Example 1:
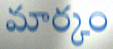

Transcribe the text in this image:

మార్కం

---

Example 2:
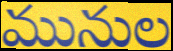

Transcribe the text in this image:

మునుల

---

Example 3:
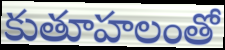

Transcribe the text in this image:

కుతూహలంతో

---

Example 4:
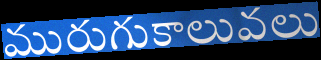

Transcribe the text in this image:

మురుగుకాలువలు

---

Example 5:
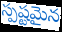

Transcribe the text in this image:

స్పష్టమైన